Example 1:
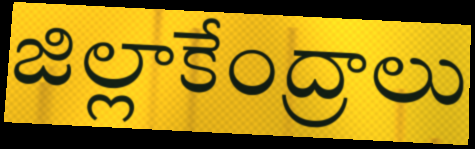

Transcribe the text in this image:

జిల్లాకేంద్రాలు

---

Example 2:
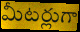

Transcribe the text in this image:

మీటర్లుగా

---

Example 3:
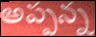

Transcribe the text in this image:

అప్పన్న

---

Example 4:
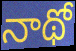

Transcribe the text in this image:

నాథో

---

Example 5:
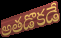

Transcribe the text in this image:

అతడొకడే